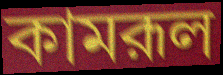
কামরূল